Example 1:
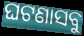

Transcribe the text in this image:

ଘଟଣାସବୁ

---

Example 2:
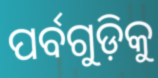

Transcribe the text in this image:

ପର୍ବଗୁଡ଼ିକୁ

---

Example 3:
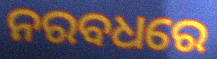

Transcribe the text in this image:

ନରବଧରେ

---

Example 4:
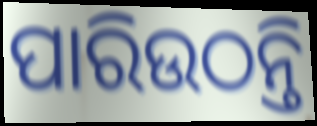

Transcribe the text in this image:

ପାରିଉଠନ୍ତି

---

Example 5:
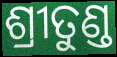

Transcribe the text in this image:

ଶ୍ରୀତୁଣ୍ଡ